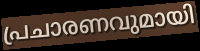
പ്രചാരണവുമായി